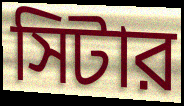
সিটার